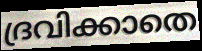
ദ്രവിക്കാതെ